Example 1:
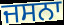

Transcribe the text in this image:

ਜਸਨਾ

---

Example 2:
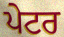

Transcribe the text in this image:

ਪੇਟਰ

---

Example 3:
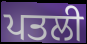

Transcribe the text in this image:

ਪਤਲੀ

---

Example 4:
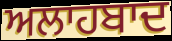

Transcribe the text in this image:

ਅਲਾਹਬਾਦ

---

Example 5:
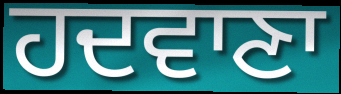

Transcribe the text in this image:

ਹਦਵਾਣਾ